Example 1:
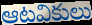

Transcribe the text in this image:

ఆటవికులు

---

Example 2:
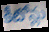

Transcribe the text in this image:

కీటోన్లు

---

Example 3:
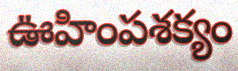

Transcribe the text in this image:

ఊహింపశక్యం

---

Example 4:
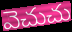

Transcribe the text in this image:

వెచుచు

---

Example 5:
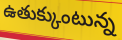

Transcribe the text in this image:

ఉతుక్కుంటున్న